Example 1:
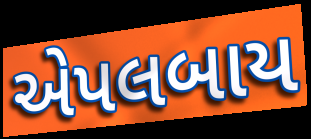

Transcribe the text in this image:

એપલબાય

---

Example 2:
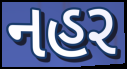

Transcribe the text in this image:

નહર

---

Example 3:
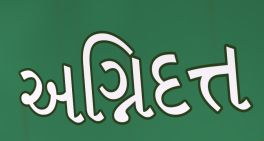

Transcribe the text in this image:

અગ્નિદત્ત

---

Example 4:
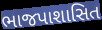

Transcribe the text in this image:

ભાજપાશાસિત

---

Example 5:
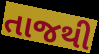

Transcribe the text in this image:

તાજથી